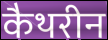
कैथरीन